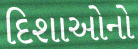
દિશાઓનો